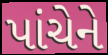
પાંચેને